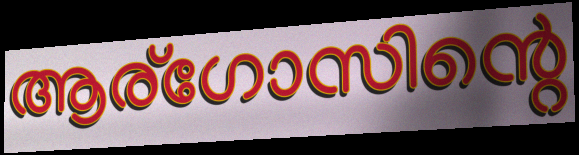
ആര്ഗോസിന്റെ